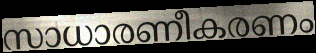
സാധാരണീകരണം